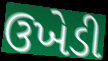
ઉખેડી